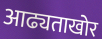
आढ्यताखोर